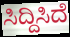
ಸಿದ್ದಿಸಿದೆ